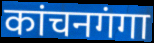
कांचनगंगा